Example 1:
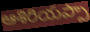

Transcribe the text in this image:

ఆశిరియప్పా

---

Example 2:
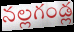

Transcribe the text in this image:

నల్లగండ్ల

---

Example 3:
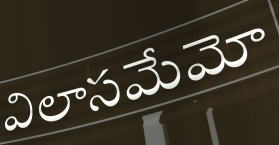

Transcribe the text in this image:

విలాసమేమో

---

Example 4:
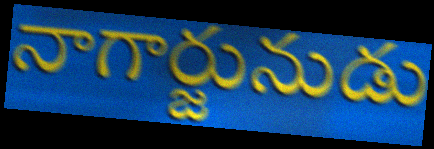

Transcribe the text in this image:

నాగార్జునుడు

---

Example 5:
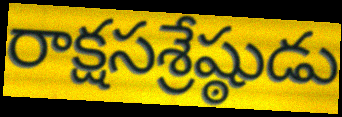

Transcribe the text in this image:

రాక్షసశ్రేష్ఠుడు